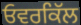
ਓਵਰਕਿੱਲ